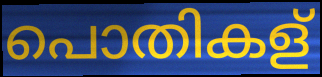
പൊതികള്